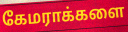
கேமராக்களை